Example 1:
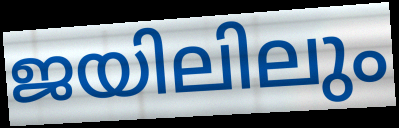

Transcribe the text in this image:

ജയിലിലും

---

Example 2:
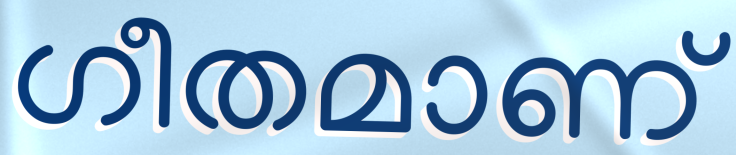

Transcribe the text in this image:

ഗീതമാണ്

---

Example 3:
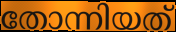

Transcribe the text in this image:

തോന്നിയത്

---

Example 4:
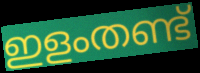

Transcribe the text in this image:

ഇളംതണ്ട്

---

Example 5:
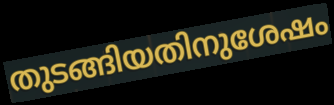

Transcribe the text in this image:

തുടങ്ങിയതിനുശേഷം